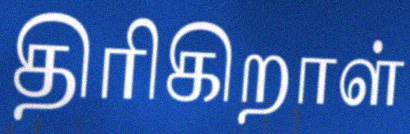
திரிகிறாள்